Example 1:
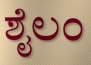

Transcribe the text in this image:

ಶೈಲಂ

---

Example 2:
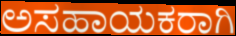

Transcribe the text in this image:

ಅಸಹಾಯಕರಾಗಿ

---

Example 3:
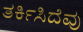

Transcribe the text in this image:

ತರ್ಕಿಸಿದೆವು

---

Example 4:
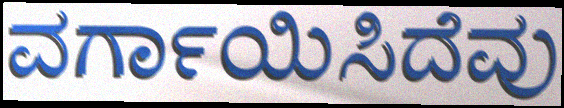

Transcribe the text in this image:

ವರ್ಗಾಯಿಸಿದೆವು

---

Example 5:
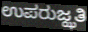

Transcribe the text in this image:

ಉಪರುಜ್ಝತಿ